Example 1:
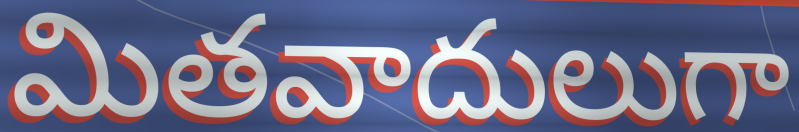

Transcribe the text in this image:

మితవాదులుగా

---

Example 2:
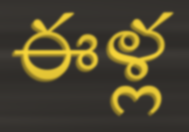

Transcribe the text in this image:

ఈళ్ల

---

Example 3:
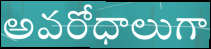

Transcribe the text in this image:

అవరోధాలుగా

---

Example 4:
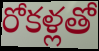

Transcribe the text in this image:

రోకళ్లతో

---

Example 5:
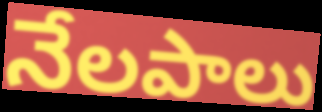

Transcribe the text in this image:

నేలపాలు